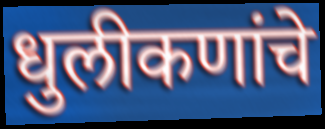
धुलीकणांचे